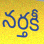
నర్తకీ